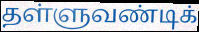
தள்ளுவண்டிக்